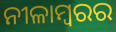
ନୀଳାମ୍ବରର